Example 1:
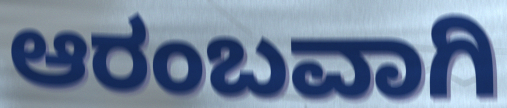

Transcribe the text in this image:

ಆರಂಬವಾಗಿ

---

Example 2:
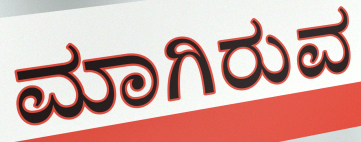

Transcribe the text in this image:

ಮಾಗಿರುವ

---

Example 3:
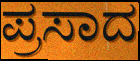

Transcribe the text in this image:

ಪ್ರಸಾದ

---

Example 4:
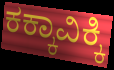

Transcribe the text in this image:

ಕಕ್ಕಾವಿಕ್ಕಿ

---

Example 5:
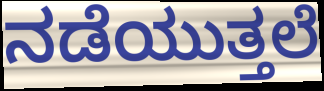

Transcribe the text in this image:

ನಡೆಯುತ್ತಲೆ